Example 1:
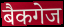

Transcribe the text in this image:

बैकगेज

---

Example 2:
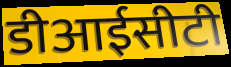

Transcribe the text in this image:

डीआईसीटी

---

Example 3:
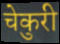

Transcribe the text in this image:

चेकुरी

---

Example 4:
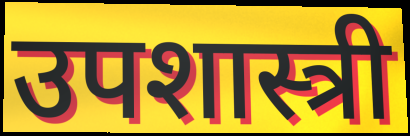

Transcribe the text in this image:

उपशास्त्री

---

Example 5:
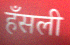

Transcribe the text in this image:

हँसली